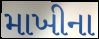
માખીના